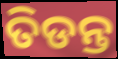
ତିଡନ୍ତ